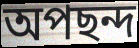
অপছন্দ